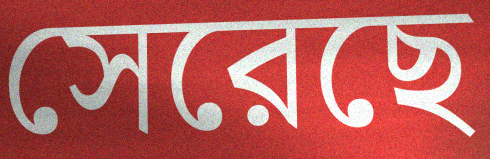
সেরেছে